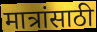
मात्रांसाठी